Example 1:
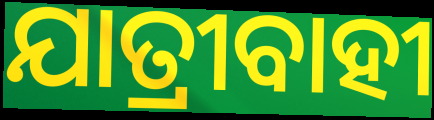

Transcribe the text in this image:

ଯାତ୍ରୀବାହୀ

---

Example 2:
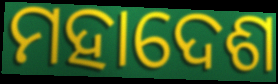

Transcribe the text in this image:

ମହାଦେଶ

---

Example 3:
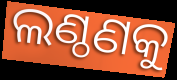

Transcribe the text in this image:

ଲଣ୍ଠଣକୁ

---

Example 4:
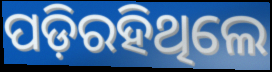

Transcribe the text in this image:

ପଡ଼ିରହିଥିଲେ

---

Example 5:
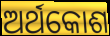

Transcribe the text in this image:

ଅର୍ଥକୋଶ